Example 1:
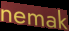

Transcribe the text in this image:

nemak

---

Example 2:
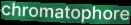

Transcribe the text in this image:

chromatophore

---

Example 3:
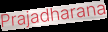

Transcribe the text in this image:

Prajadharana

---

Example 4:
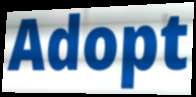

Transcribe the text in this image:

Adopt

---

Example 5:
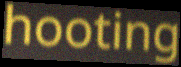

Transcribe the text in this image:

hooting